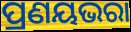
ପ୍ରଣୟଭରା